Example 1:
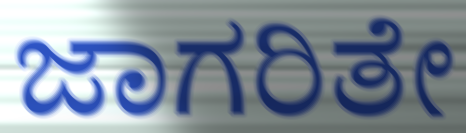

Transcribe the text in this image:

ಜಾಗರಿತೇ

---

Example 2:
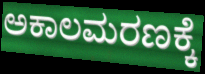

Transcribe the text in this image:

ಅಕಾಲಮರಣಕ್ಕೆ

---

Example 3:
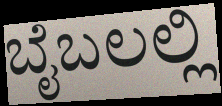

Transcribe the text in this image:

ಬೈಬಲಲ್ಲಿ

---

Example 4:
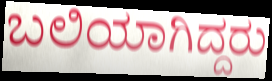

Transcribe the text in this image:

ಬಲಿಯಾಗಿದ್ದರು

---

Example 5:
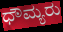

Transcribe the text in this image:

ಧೌಮ್ಯರು